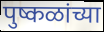
पुष्कळांच्या